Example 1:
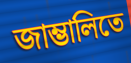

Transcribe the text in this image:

জাম্ভালিতে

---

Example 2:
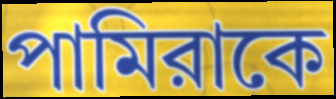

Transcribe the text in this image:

পামিরাকে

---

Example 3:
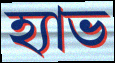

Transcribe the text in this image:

হ্যাভ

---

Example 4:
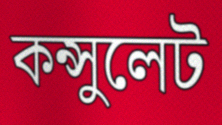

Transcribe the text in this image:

কন্সুলেট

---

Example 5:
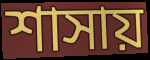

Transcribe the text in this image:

শাসায়